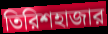
তিরিশহাজার